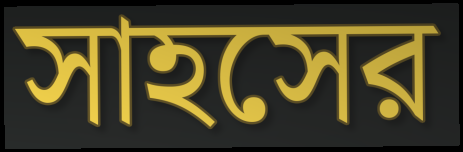
সাহসের